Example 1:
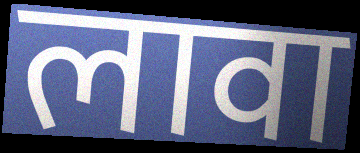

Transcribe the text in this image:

लावा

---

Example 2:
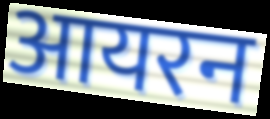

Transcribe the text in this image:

आयरन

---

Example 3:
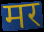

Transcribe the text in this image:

मर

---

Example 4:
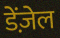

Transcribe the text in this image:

डेंज़ेल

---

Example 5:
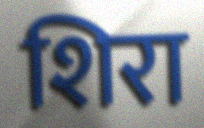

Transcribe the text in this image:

शिरा